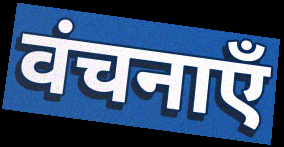
वंचनाएँ